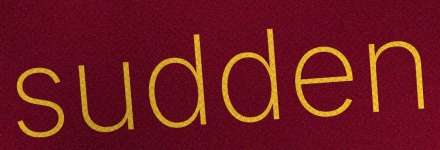
sudden